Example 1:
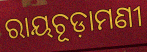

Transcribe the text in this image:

ରାୟଚୂଡ଼ାମଣୀ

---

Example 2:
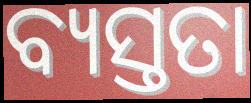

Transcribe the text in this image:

ବ୍ୟସ୍ତତା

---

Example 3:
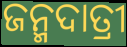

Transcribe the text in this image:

ଜନ୍ମଦାତ୍ରୀ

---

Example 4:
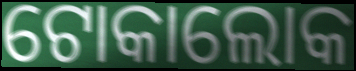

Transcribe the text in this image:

ଟୋକାଲୋକ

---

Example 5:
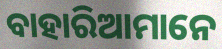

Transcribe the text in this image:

ବାହାରିଆମାନେ